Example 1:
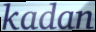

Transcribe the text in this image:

kadan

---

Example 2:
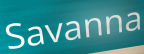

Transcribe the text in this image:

Savanna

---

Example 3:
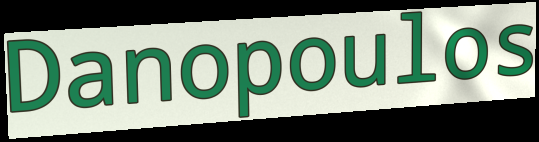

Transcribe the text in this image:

Danopoulos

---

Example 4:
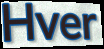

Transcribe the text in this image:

Hver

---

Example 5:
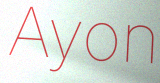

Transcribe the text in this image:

Ayon